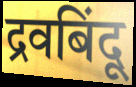
द्रवबिंदू